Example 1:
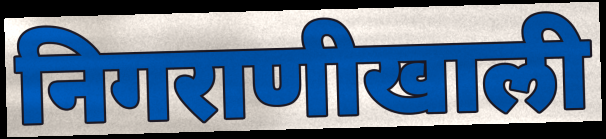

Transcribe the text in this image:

निगराणीखाली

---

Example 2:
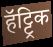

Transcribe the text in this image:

हॅट्ट्रिक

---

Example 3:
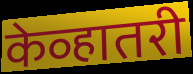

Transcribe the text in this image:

केव्हातरी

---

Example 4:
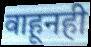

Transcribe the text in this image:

वाहूनही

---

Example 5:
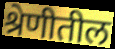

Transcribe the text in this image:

श्रेणीतील